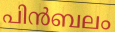
പിൻബലം